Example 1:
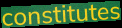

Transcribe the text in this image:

constitutes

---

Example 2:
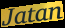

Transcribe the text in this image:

Jatan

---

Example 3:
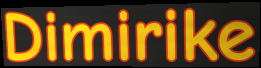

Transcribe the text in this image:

Dimirike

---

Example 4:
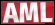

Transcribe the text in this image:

AML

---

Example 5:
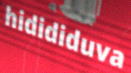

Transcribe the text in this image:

hidididuva